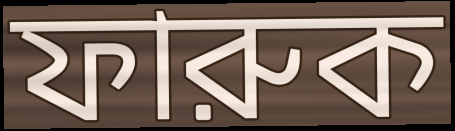
ফাৰুক